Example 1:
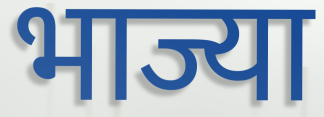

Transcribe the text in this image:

भाज्या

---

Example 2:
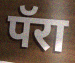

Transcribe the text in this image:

पॅरा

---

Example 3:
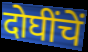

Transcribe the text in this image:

दोघींचें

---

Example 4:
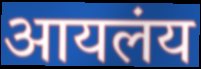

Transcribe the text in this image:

आयलंय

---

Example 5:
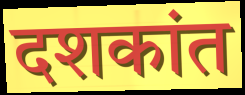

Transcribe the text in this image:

दशकांत